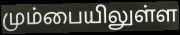
மும்பையிலுள்ள